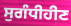
ਸੁਗੰਧੀਹੀਣ